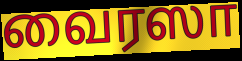
வைரஸா